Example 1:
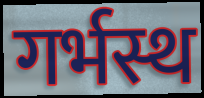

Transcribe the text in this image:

गर्भस्थ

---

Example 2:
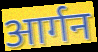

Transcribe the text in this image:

आर्गन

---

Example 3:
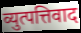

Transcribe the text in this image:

व्युत्पत्तिवाद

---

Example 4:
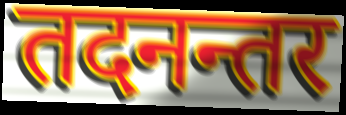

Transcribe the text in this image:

तदनन्तर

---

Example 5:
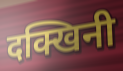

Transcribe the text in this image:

दक्खिनी